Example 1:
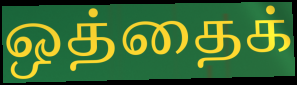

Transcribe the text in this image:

ஒத்தைக்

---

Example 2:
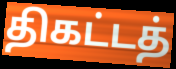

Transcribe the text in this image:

திகட்டத்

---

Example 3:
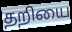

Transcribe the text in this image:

தறியை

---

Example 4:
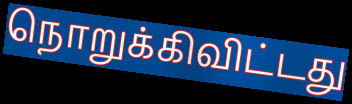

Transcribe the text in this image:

நொறுக்கிவிட்டது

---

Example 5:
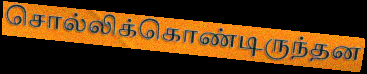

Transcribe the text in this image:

சொல்லிக்கொண்டிருந்தன